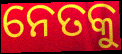
ନେତକୁ